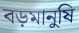
বড়মানুষি